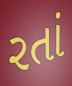
રતાં